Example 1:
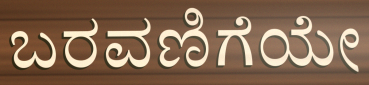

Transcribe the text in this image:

ಬರವಣಿಗೆಯೇ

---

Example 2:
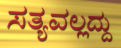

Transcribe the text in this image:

ಸತ್ಯವಲ್ಲದ್ದು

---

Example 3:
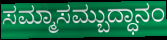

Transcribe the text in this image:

ಸಮ್ಮಾಸಮ್ಬುದ್ಧಾನಂ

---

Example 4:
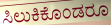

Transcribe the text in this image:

ಸಿಲುಕಿಕೊಂಡರೂ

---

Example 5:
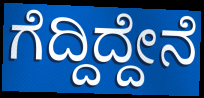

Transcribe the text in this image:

ಗೆದ್ದಿದ್ದೇನೆ